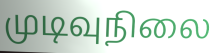
முடிவுநிலை